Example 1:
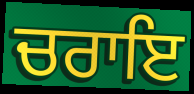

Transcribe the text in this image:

ਚਰਾਇ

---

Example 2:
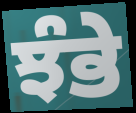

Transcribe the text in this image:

ਝੰਭੇ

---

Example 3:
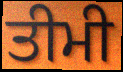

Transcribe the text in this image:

ਤੀਮੀ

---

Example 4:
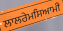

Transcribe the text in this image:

ਲਾਲਰੇਮਸਿਆਮੀ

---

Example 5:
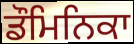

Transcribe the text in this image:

ਡੌਮਿਨਿਕਾ